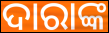
ଦାରାଙ୍କ